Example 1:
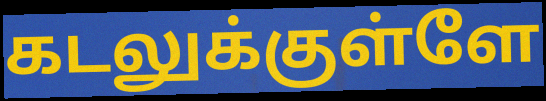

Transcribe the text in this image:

கடலுக்குள்ளே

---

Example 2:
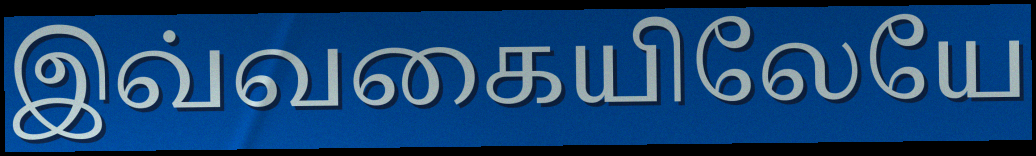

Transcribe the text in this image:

இவ்வகையிலேயே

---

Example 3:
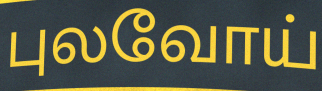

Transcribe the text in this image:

புலவோய்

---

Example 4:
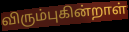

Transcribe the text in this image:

விரும்புகின்றாள்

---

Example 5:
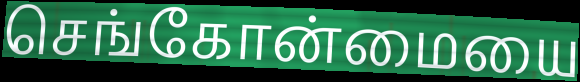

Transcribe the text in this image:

செங்கோன்மையை